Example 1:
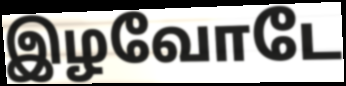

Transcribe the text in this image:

இழவோடே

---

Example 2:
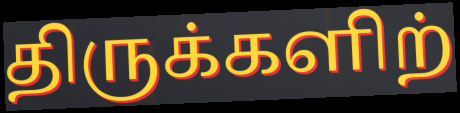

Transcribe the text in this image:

திருக்களிற்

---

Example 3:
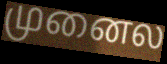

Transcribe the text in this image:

முனைல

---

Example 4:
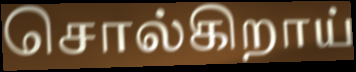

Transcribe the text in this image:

சொல்கிறாய்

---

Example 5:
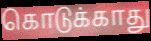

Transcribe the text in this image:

கொடுக்காது